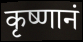
कृष्णानं